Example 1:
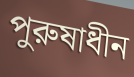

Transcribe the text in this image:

পুরুষাধীন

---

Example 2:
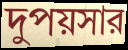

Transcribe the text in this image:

দুপয়সার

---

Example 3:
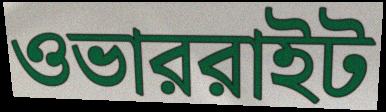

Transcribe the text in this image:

ওভাররাইট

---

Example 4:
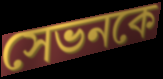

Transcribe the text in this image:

সেভনকে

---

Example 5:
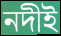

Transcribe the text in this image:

নদীই